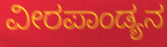
ವೀರಪಾಂಡ್ಯನ